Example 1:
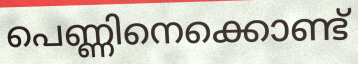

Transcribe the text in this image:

പെണ്ണിനെക്കൊണ്ട്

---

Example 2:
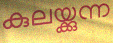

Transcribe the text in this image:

കുലയ്ക്കുന്ന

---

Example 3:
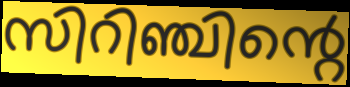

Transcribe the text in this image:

സിറിഞ്ചിന്റെ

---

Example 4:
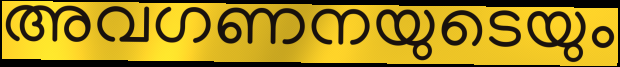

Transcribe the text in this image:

അവഗണനയുടെയും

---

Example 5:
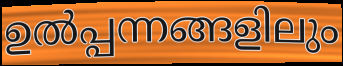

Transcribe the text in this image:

ഉൽപ്പന്നങ്ങളിലും